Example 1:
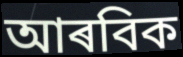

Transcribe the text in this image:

আৰবিক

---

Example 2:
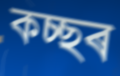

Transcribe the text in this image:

কচ্ছৰ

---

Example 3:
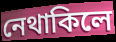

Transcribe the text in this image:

নেথাকিলে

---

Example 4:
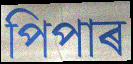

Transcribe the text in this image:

পিপাৰ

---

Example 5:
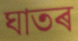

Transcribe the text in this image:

ঘাতৰ